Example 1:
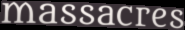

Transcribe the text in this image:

massacres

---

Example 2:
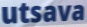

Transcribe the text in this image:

utsava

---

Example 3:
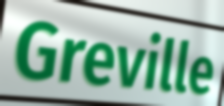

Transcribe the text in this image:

Greville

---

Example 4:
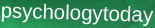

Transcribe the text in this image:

psychologytoday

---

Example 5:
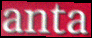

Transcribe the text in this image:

anta